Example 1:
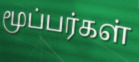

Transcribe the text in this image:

மூப்பர்கள்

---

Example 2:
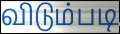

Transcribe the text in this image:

விடும்படி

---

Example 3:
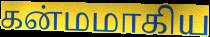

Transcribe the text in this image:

கன்மமாகிய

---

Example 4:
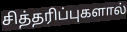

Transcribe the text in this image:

சித்தரிப்புகளால்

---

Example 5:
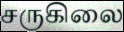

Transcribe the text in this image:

சருகிலை